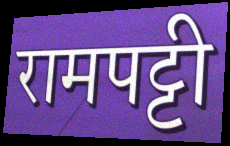
रामपट्टी